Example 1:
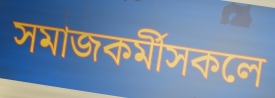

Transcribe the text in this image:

সমাজকৰ্মীসকলে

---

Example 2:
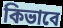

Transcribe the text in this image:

কিভাবে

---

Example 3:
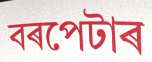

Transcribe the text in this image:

বৰপেটাৰ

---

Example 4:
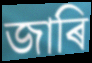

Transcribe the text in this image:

জাৰি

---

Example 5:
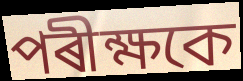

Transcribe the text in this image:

পৰীক্ষকে